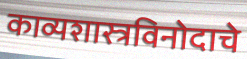
काव्यशास्त्रविनोदाचे